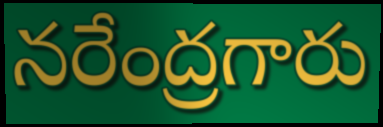
నరేంద్రగారు